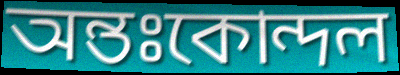
অন্তঃকোন্দল